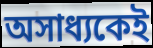
অসাধ্যকেই